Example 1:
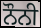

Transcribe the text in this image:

ਨੌਨੀ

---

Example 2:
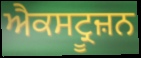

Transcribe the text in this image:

ਐਕਸਟ੍ਰੂਜ਼ਨ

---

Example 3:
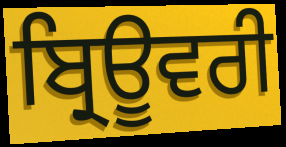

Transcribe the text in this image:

ਬ੍ਰਿਊਵਰੀ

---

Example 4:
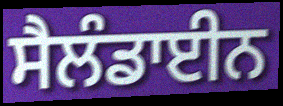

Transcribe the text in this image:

ਸੈਲੰਡਾਈਨ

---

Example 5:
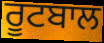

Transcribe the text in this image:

ਰੂਟਬਾਲ